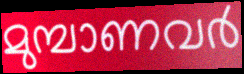
മുമ്പാണവർ